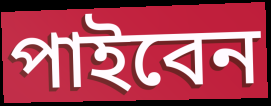
পাইবেন